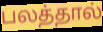
பலத்தால்